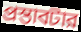
প্রস্তাবটার